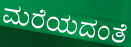
ಮರೆಯದಂತೆ